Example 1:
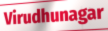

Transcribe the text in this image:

Virudhunagar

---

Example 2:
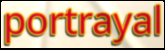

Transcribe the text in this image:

portrayal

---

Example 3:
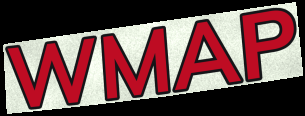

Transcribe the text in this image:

WMAP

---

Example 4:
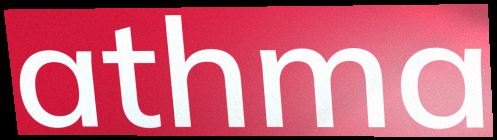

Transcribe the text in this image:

athma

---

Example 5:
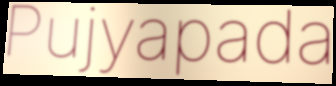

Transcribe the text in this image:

Pujyapada